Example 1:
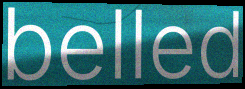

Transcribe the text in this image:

belled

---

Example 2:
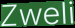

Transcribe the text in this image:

Zweli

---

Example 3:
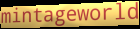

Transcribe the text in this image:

mintageworld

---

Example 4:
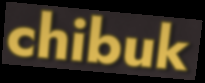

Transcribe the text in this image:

chibuk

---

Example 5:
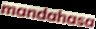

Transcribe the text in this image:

mandahasa